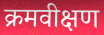
क्रमवीक्षण